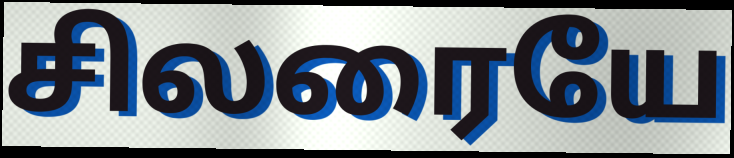
சிலரையே